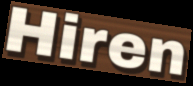
Hiren